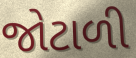
જોટાળી